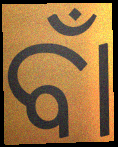
ବାଁ